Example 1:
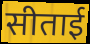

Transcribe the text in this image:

सीताई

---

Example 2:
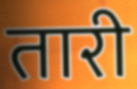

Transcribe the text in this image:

तारी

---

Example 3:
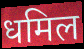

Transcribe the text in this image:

धमिल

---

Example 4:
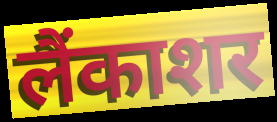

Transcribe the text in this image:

लैंकाशर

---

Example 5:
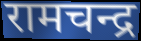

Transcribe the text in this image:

रामचन्‍द्र